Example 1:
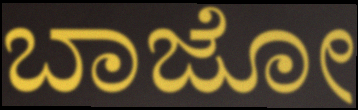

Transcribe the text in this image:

ಬಾಜೋ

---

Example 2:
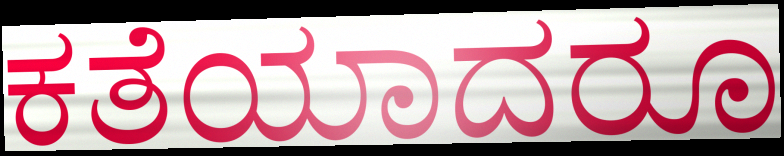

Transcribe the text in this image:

ಕತೆಯಾದರೂ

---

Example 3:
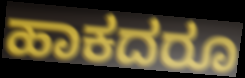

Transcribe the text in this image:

ಹಾಕದರೂ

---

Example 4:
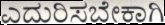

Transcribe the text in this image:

ಎದುರಿಸಬೇಕಾಗಿ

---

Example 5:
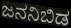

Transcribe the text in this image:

ಜನನಿಬಿಡ